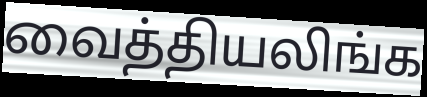
வைத்தியலிங்க